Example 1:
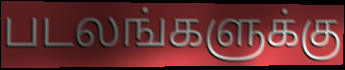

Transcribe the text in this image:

படலங்களுக்கு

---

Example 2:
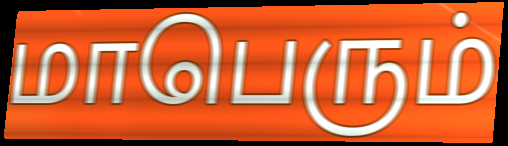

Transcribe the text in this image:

மாபெரும்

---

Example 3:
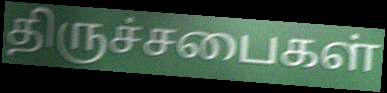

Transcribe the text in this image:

திருச்சபைகள்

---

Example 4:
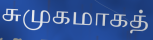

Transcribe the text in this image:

சுமுகமாகத்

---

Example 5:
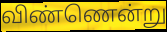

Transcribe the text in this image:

விண்ணென்று